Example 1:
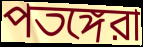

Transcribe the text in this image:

পতঙ্গেরা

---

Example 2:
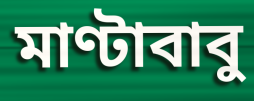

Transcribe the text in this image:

মাণ্টাবাবু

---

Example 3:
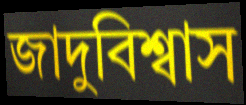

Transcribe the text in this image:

জাদুবিশ্বাস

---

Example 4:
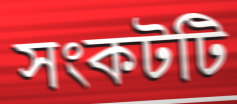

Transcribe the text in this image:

সংকটটি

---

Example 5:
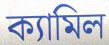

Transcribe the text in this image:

ক্যামিল